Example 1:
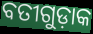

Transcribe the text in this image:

ବତୀଗୁଡ଼ାକ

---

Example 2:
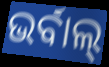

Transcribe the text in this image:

ଭର୍ବାଲ୍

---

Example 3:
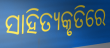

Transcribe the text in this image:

ସାହିତ୍ୟକୃତିରେ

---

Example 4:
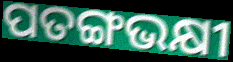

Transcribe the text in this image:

ପତଙ୍ଗଭକ୍ଷୀ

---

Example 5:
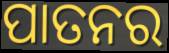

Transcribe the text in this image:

ପାତନର